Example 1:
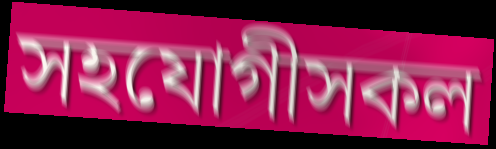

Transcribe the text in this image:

সহযোগীসকল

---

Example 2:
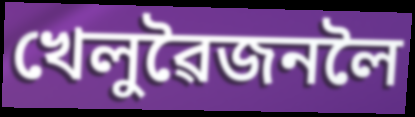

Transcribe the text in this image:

খেলুৱৈজনলৈ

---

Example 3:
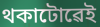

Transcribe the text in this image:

থকাটোৱেই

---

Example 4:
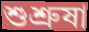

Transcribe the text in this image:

শুশ্ৰুষা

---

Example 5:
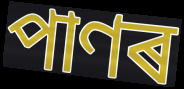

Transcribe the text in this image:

পাণৰ